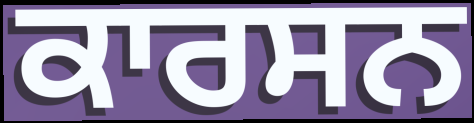
ਕਾਰਸਨ